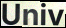
Univ